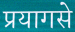
प्रयागसे